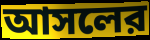
আসলের